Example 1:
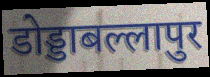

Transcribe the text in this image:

डोड्डाबल्लापुर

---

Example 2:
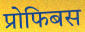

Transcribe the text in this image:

प्रोफिबस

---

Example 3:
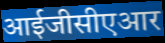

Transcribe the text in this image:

आईजीसीएआर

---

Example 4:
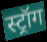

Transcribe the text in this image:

स्ट्रॉग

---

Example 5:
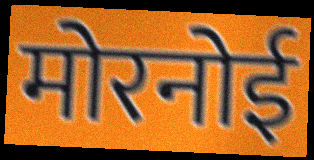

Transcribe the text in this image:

मोरनोई